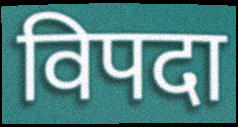
विपदा